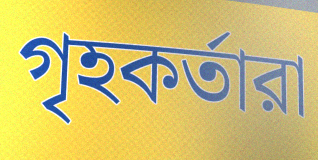
গৃহকর্তারা